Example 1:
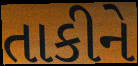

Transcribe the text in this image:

તાકીને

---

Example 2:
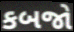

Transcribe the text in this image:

કબજો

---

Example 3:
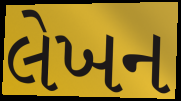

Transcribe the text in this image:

લેખન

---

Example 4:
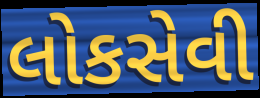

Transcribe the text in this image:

લોકસેવી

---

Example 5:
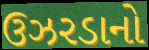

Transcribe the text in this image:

ઉઝરડાનો